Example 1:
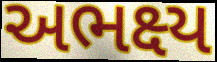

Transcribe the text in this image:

અભક્ષ્ય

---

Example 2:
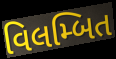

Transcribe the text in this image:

વિલમ્બિત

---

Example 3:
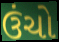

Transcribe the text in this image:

ઉંચો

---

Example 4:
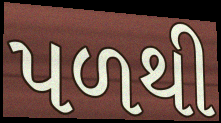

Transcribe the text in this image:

પળથી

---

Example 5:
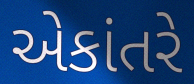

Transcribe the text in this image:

એકાંતરે